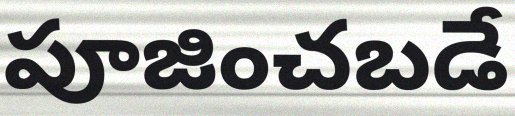
పూజించబడే